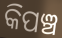
କିପଞ୍ଚ